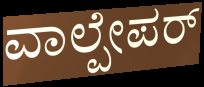
ವಾಲ್ಪೇಪರ್